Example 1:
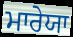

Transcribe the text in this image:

ਮਾਰੇਯਾ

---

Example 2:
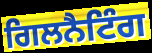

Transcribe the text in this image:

ਗਿਲਨੈਟਿੰਗ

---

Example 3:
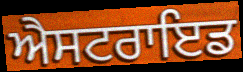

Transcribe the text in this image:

ਐਸਟਰਾਇਡ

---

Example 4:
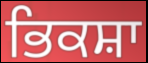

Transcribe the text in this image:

ਭਿਕਸ਼ਾ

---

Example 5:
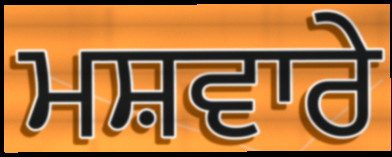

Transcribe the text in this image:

ਮਸ਼ਵਾਰੇ